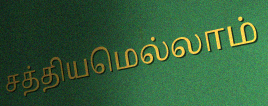
சத்தியமெல்லாம்